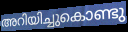
അറിയിച്ചുകൊണ്ടു